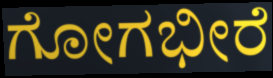
ಗೋಗಭೀರೆ